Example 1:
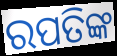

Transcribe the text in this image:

ରପତିଙ୍କ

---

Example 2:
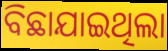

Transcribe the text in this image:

ବିଛାଯାଇଥିଲା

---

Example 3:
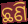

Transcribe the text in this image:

ଛଣି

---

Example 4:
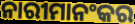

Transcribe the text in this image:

ନାରୀମାନଂକର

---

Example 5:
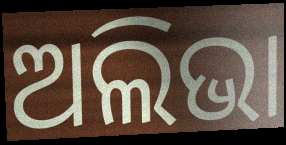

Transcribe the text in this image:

ଅଲିଭା